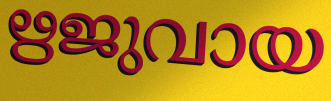
ഋജുവായ